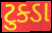
ટુક્ડા